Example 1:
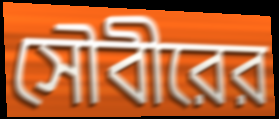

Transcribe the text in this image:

সৌবীরের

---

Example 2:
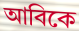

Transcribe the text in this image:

আবিকে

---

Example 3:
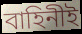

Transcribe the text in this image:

বাহিনীই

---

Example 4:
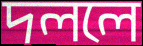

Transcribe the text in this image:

দললে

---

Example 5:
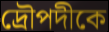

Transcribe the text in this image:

দ্রৌপদীকে